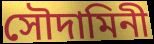
সৌদামিনী